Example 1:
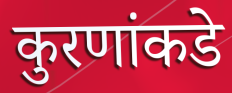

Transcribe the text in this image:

कुरणांकडे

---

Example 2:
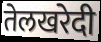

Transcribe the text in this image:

तेलखरेदी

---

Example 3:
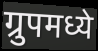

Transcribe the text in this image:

ग्रुपमध्ये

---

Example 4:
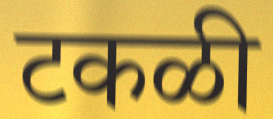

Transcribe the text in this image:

टकळी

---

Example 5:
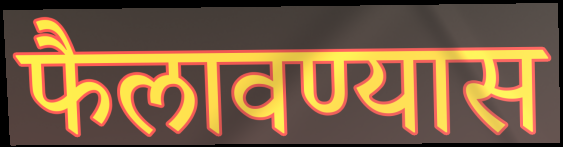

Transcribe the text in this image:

फैलावण्यास